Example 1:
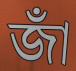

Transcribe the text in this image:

জাঁ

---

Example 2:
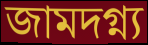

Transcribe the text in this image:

জামদগ্ন্য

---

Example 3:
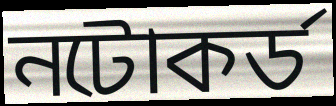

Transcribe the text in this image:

নটোকর্ড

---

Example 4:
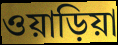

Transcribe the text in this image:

ওয়াড়িয়া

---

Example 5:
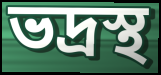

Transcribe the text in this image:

ভদ্রস্থ